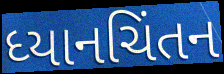
ધ્યાનચિંતન